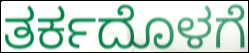
ತರ್ಕದೊಳಗೆ